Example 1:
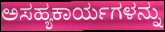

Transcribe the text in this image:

ಅಸಹ್ಯಕಾರ್ಯಗಳನ್ನು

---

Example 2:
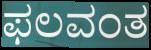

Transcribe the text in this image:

ಫಲವಂತ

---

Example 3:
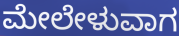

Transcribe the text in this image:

ಮೇಲೇಳುವಾಗ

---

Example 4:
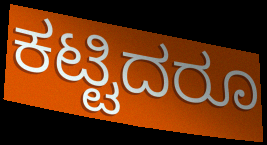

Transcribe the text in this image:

ಕಟ್ಟಿದರೂ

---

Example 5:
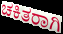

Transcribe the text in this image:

ಚಕಿತರಾಗಿ